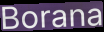
Borana